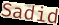
Sadid